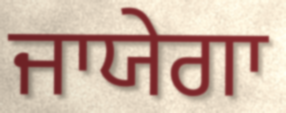
ਜਾਯੇਗਾ